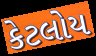
કેટલોય